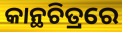
କାନ୍ଥଚିତ୍ରରେ